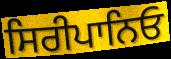
ਸਿਰੀਪਾਨਿਓ